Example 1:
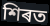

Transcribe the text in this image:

শিৰত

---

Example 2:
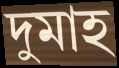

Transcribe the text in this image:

দুমাহ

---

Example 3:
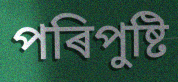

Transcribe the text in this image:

পৰিপুষ্টি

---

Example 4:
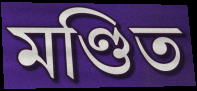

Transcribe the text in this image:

মণ্ডিত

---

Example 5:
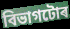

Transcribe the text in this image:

বিভাগটোৰ